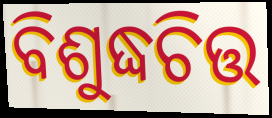
ବିଶୁଦ୍ଧଚିତ୍ତ